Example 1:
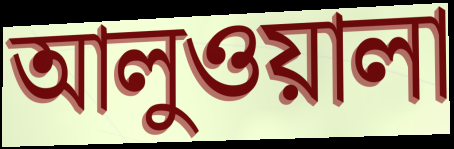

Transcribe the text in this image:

আলুওয়ালা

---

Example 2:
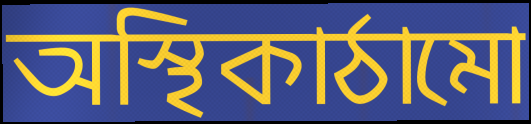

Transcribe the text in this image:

অস্থিকাঠামো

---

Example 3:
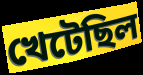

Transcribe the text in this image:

খেটেছিল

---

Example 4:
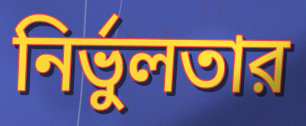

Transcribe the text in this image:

নির্ভুলতার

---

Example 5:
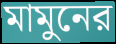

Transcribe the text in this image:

মামুনের